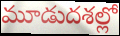
మూడుదశల్లో